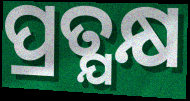
ପ୍ରତ୍ଯକ୍ଷ